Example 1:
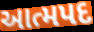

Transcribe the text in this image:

આત્મપદ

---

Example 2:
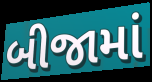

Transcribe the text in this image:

બીજામાં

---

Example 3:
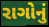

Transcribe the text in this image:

રાગોનું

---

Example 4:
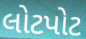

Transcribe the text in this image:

લોટપોટ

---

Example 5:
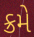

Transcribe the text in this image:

ક્રમે